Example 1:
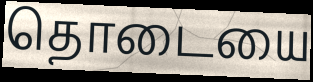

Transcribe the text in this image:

தொடையை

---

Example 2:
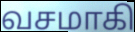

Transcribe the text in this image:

வசமாகி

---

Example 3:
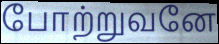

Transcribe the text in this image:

போற்றுவனே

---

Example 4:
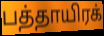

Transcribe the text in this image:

பத்தாயிரக்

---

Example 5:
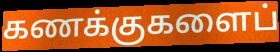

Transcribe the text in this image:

கணக்குகளைப்